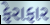
ફેરાફાર